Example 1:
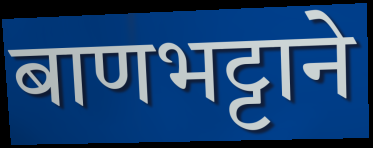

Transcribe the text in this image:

बाणभट्टाने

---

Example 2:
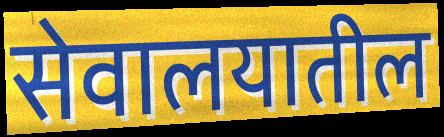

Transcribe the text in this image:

सेवालयातील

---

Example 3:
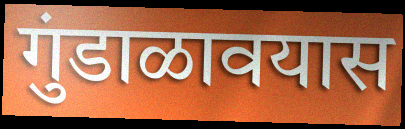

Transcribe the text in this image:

गुंडाळावयास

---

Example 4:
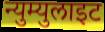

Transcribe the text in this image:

न्युम्युलाइट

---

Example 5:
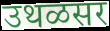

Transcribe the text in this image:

उथळसर